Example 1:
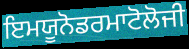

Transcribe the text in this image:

ਇਮਯੂਨੋਡਰਮਾਟੋਲੋਜੀ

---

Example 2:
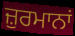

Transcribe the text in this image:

ਜ਼ੁਰਮਾਨਾਂ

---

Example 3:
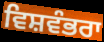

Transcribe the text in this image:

ਵਿਸ਼ਵੰਭਰਾ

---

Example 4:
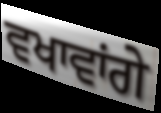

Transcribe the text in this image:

ਵਖਾਵਾਂਗੇ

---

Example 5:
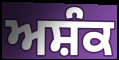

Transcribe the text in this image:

ਅਸ਼ੰਕ